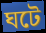
ঘটে